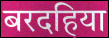
बरदहिया